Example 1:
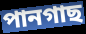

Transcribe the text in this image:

পানগাছ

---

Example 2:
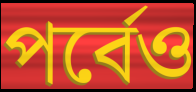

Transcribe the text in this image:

পর্বেও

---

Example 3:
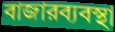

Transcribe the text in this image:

বাজারব্যবস্থা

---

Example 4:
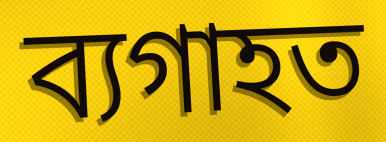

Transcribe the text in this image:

ব্যগাহত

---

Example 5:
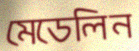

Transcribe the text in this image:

মেডেলিন